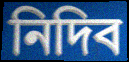
নিদিব